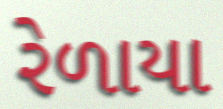
રેળાયા